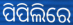
ପିପିଲିରେ